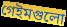
গেইমগুলো